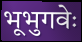
भूभुगवेः